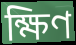
ক্ষিণ